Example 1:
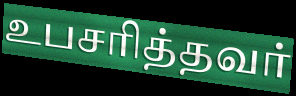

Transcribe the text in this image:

உபசரித்தவர்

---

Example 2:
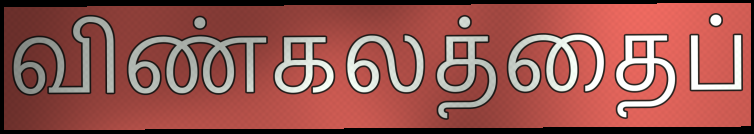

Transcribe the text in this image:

விண்கலத்தைப்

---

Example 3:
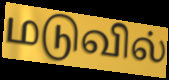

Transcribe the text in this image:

மடுவில்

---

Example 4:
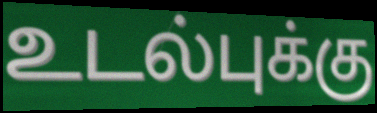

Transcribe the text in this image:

உடல்புக்கு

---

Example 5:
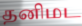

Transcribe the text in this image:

தனிமட